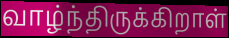
வாழ்ந்திருக்கிறாள்